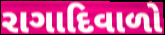
રાગાદિવાળો